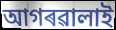
আগৰৱালাই